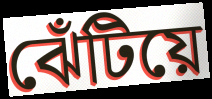
ঝেঁটিয়ে